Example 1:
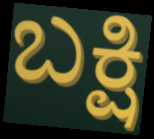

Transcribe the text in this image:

ಬಕ್ಷಿ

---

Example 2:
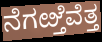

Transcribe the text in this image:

ನೆಗೞ್ತೆವೆತ್ತ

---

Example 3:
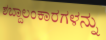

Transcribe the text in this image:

ಶಬ್ದಾಲಂಕಾರಗಳನ್ನು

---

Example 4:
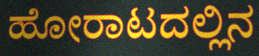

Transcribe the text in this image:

ಹೋರಾಟದಲ್ಲಿನ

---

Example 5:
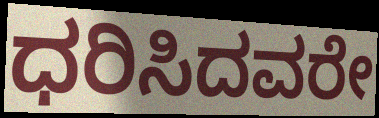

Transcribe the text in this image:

ಧರಿಸಿದವರೇ